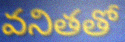
వనితతో